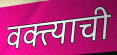
वक्त्याची